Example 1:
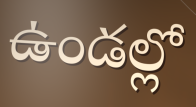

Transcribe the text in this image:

ఉండల్లో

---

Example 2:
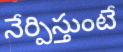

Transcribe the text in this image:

నేర్పిస్తుంటే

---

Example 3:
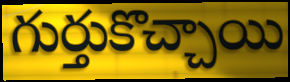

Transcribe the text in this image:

గుర్తుకొచ్చాయి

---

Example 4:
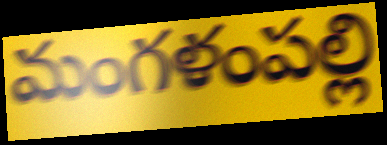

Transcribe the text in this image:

మంగళంపల్లి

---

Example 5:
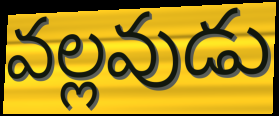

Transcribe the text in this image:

వల్లవుడు